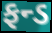
ફન્ડ